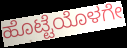
ಹೊಟ್ಟೆಯೊಳಗೇ